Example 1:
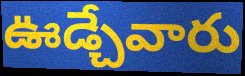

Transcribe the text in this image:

ఊడ్చేవారు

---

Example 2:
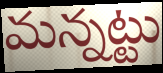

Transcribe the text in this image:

మన్నట్టు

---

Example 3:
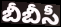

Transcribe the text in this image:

బీబీసీ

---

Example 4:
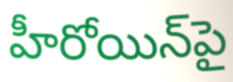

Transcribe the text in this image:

హీరోయిన్‌పై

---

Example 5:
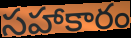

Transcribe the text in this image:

సహాకారం